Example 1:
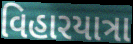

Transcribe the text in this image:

વિહારયાત્રા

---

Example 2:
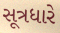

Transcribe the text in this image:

સૂત્રધારે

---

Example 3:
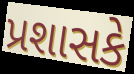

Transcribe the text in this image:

પ્રશાસકે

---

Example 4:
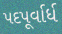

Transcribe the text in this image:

પદપૂર્વાર્ધ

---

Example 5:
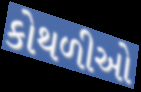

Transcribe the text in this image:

કોથળીઓ